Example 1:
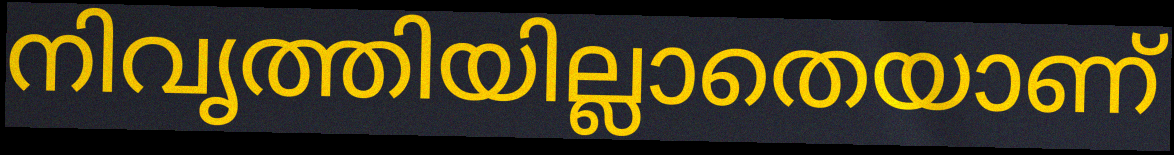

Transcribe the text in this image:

നിവൃത്തിയില്ലാതെയാണ്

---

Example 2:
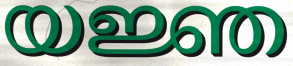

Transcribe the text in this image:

യജ്ഞ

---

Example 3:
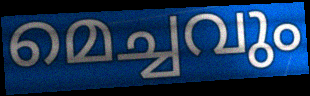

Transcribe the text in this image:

മെച്ചവും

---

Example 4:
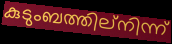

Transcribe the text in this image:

കുടുംബത്തില്നിന്ന്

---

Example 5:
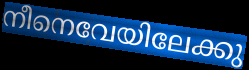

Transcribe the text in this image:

നീനെവേയിലേക്കു